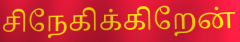
சிநேகிக்கிறேன்